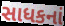
સાધકનાં